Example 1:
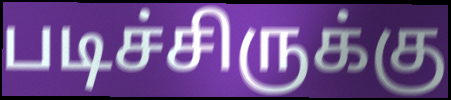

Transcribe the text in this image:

படிச்சிருக்கு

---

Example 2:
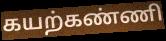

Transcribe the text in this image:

கயற்கண்ணி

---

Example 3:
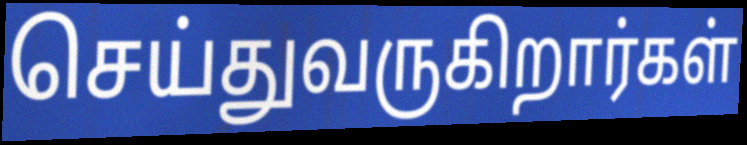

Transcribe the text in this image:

செய்துவருகிறார்கள்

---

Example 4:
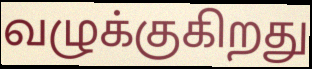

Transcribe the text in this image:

வழுக்குகிறது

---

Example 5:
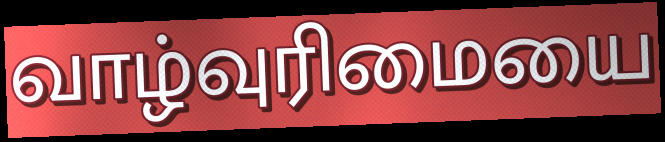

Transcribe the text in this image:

வாழ்வுரிமையை